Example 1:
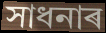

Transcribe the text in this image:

সাধনাৰ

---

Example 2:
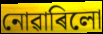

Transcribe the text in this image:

নোৱাৰিলো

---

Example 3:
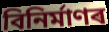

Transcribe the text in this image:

বিনিৰ্মাণৰ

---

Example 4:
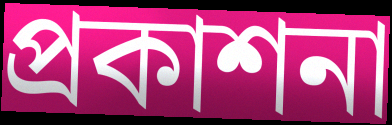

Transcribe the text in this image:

প্ৰকাশনা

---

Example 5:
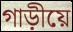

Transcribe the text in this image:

গাড়ীয়ে